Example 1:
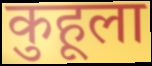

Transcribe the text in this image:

कुहूला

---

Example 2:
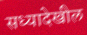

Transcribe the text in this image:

सध्यादेखील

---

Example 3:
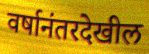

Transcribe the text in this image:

वर्षानंतरदेखील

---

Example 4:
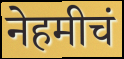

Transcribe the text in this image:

नेहमीचं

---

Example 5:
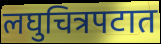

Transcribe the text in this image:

लघुचित्रपटात